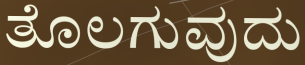
ತೊಲಗುವುದು